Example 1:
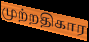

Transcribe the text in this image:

முற்றதிகார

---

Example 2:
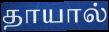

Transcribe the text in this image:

தாயால்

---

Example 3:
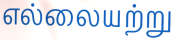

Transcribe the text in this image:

எல்லையற்று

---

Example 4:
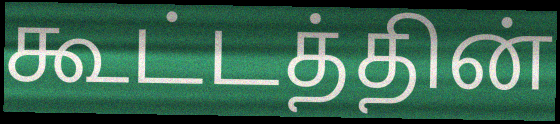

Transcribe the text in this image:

கூட்டத்தின்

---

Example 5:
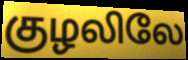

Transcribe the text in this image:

குழலிலே